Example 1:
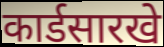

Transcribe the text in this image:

कार्डसारखे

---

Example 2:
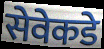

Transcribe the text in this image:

सेवेकडे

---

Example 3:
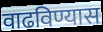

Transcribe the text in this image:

वाढविण्यास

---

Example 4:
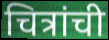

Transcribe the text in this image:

चित्रांची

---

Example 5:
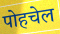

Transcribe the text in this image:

पोहचेल